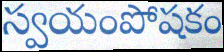
స్వయంపోషకం